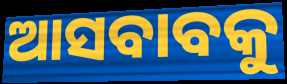
ଆସବାବକୁ